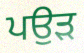
ਪਉੜ